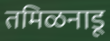
तमिळनाडू